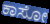
ಕಾಸೋ